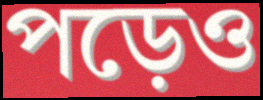
পড়েও